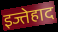
इज्तेहाद